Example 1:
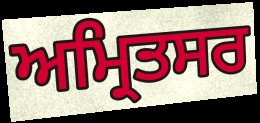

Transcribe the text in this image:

ਅਮ੍ਰਿਤਸਰ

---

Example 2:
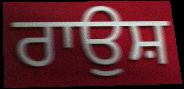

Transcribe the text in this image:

ਰਾਉਸ਼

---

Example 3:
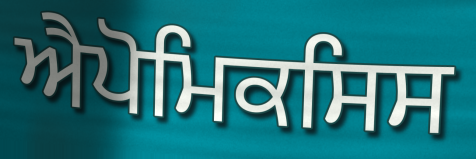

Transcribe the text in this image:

ਐਪੋਮਿਕਸਿਸ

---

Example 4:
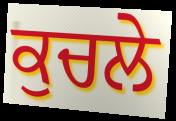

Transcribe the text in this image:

ਕੁਚਲੇ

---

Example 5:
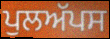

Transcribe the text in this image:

ਪੁਲਅੱਪਸ